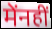
मेंनहीं